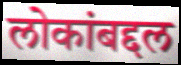
लोकांबद्दल